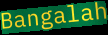
Bangalah